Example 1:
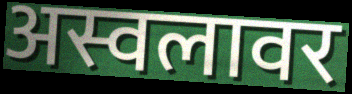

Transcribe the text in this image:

अस्वलावर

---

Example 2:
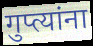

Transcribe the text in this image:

गुप्त्यांना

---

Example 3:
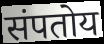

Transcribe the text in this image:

संपतोय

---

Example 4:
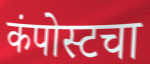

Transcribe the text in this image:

कंपोस्टचा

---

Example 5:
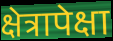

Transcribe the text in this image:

क्षेत्रापेक्षा